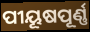
ପୀୟୂଷପୂର୍ଣ୍ଣ